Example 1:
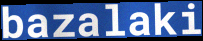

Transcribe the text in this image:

bazalaki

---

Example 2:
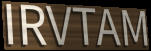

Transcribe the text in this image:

IRVTAM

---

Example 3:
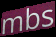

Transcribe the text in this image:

mbs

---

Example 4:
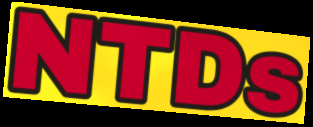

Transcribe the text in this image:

NTDs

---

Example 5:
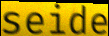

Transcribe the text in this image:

seide